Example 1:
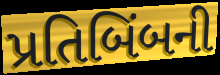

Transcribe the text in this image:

પ્રતિબિંબની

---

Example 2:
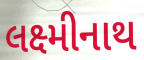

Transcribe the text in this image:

લક્ષ્મીનાથ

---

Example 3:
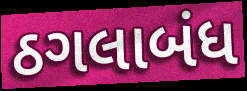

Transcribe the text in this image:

ઠગલાબંધ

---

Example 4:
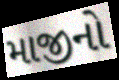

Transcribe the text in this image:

માજીનો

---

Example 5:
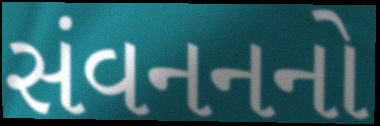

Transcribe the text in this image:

સંવનનનો